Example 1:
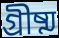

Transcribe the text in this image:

গ্রীষ্ম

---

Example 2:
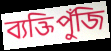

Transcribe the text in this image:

ব্যক্তিপুঁজি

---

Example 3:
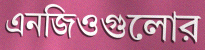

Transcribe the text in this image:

এনজিওগুলোর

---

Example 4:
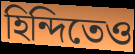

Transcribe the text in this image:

হিন্দিতেও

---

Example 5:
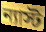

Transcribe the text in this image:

ন্যাস্ট